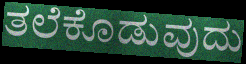
ತಲೆಕೊಡುವುದು